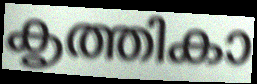
കൃത്തികാ